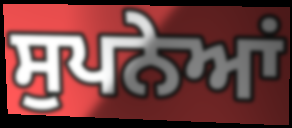
ਸੁਪਨੇਆਂ